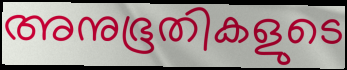
അനുഭൂതികളുടെ